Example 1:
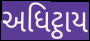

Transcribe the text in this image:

અધિટ્ઠાય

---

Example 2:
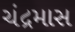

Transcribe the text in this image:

ચંદ્રમાસ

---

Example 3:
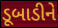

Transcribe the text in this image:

ડૂબાડીને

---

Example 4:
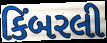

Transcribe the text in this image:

કિંબરલી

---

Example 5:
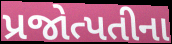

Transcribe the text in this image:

પ્રજોત્પતીના